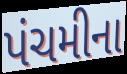
પંચમીના